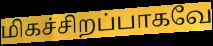
மிகச்சிறப்பாகவே